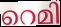
റെമി